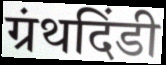
ग्रंथदिंडी